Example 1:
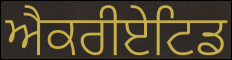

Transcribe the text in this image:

ਐਕਰੀਏਟਿਡ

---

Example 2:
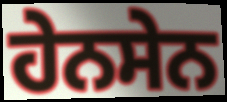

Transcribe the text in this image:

ਹੇਨਸੇਨ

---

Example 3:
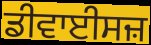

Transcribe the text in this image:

ਡੀਵਾਈਸਜ਼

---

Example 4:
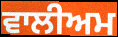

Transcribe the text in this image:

ਵਾਲੀਅਮ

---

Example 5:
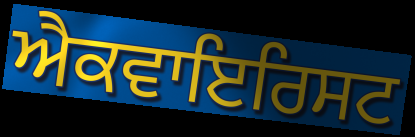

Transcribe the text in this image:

ਐਕਵਾਇਰਿਸਟ